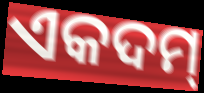
ଏକଦମ୍